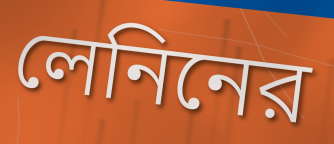
লেনিনের